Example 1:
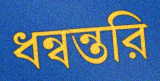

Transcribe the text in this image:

ধন্বন্তরি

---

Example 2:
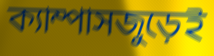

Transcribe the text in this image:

ক্যাম্পাসজুড়েই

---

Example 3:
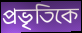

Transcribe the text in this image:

প্রভৃতিকে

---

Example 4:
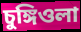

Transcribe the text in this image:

চুঙ্গিওলা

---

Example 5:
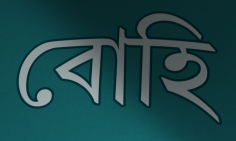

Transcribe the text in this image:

বোহি